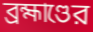
ব্রহ্মাণ্ডের